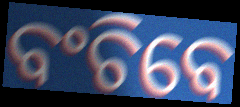
ବଂଚିବେ